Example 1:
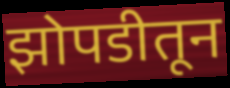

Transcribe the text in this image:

झोपडीतून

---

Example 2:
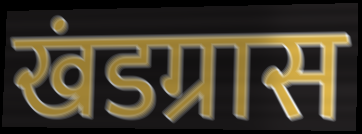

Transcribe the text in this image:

खंडग्रास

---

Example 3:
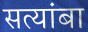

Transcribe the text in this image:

सत्यांबा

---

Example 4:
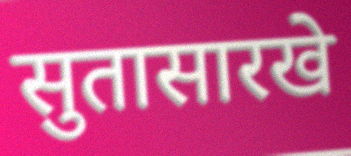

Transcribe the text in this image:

सुतासारखे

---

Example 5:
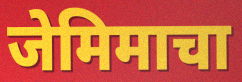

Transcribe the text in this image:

जेमिमाचा